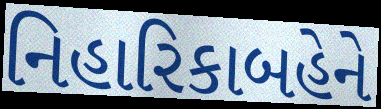
નિહારિકાબહેને